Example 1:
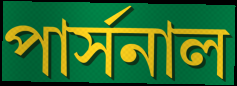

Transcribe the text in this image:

পার্সনাল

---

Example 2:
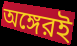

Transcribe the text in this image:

অঙ্গেরই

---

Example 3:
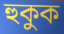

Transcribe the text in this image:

হুকুক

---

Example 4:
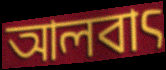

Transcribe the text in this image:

আলবাৎ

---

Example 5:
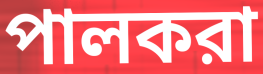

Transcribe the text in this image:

পালকরা